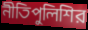
নীতিপুলিশির